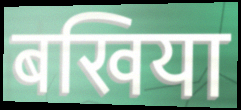
बखिया